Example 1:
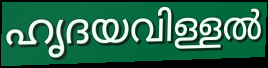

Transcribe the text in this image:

ഹൃദയവിള്ളൽ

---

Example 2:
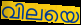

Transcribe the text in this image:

വിലയെ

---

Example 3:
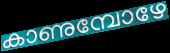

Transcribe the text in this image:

കാണുമ്പോഴേ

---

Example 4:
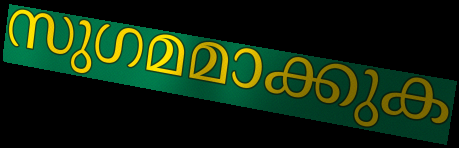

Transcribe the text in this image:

സുഗമമാക്കുക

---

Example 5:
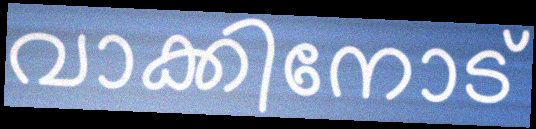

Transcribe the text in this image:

വാക്കിനോട്